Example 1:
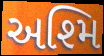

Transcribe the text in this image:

અશ્મિ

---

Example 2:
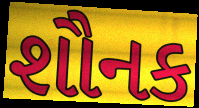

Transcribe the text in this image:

શૌનક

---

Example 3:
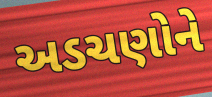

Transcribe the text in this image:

અડચણોને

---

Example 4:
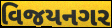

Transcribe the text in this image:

વિજયનગર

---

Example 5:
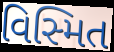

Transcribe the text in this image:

વિસ્મિત